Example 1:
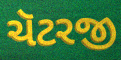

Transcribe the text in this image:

ચૅટરજી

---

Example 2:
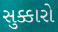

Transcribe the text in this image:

સુક્કારો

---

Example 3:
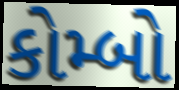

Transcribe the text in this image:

કોમ્બો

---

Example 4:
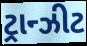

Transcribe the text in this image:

ટ્રાન્ઝીટ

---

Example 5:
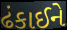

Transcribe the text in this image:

ઢંકાઈને